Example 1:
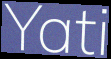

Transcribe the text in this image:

Yati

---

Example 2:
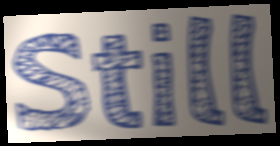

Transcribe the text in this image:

Still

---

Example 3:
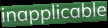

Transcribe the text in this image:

inapplicable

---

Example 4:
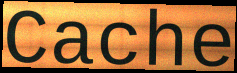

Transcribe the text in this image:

Cache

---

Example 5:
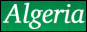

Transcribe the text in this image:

Algeria